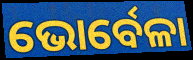
ଭୋର୍ବେଳା